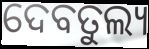
ଦେବତୁଲ୍ୟ